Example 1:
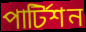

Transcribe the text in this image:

পার্টিশন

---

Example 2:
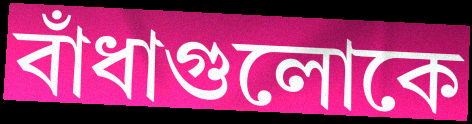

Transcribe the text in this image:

বাঁধাগুলোকে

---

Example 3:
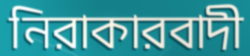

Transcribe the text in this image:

নিরাকারবাদী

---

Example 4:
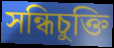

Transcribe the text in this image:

সন্ধিচুক্তি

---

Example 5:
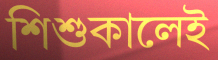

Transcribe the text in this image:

শিশুকালেই